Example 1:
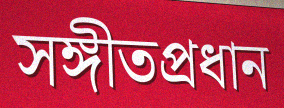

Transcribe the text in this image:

সঙ্গীতপ্রধান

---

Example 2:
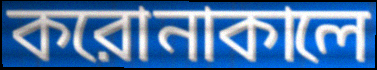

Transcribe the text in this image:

করোনাকালে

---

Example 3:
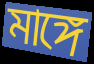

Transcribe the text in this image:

মাঙ্গে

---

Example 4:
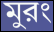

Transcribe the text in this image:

মুরং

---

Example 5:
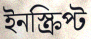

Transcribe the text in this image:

ইনস্ক্রিপ্ট